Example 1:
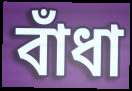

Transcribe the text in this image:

বাঁধা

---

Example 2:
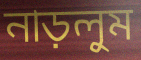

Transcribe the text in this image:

নাড়লুম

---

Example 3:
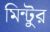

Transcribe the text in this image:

মিন্টুর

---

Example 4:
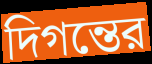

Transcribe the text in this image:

দিগন্তের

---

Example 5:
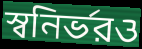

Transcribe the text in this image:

স্বনির্ভরও